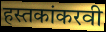
हस्तकांकरवी